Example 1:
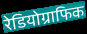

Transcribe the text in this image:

रेडियोग्राफिक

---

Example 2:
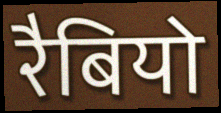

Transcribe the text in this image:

रैबियो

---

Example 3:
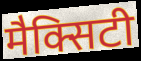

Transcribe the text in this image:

मैक्सिटी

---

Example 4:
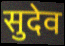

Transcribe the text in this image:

सुदेव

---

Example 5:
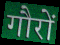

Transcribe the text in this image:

गौरों